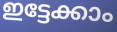
ഇട്ടേക്കാം